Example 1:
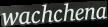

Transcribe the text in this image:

wachchena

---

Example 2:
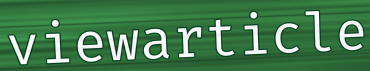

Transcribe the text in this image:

viewarticle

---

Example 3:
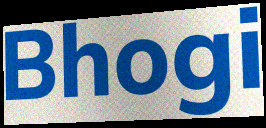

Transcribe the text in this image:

Bhogi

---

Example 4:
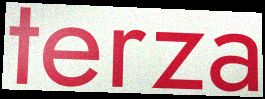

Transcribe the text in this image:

terza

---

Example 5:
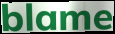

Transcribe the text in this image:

blame